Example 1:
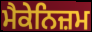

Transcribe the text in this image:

ਮੈਕੇਨਿਜ਼ਮ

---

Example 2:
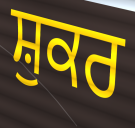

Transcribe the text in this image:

ਸ਼ੁਕਰ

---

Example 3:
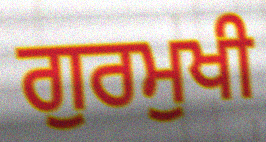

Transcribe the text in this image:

ਗੁਰਮੁਖੀ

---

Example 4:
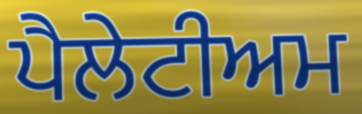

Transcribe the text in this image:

ਪੈਲੇਟੀਅਮ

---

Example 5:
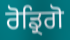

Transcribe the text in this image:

ਰੋਡ੍ਰਿਗੋ